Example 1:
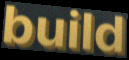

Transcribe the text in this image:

build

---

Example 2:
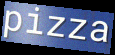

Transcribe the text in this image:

pizza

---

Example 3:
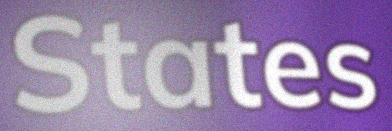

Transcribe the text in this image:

States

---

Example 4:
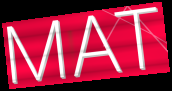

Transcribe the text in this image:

MAT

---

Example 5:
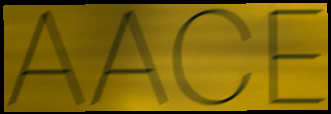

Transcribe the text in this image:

AACE